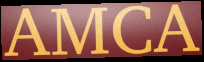
AMCA